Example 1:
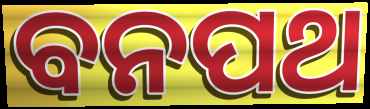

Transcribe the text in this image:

ବନପଥ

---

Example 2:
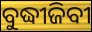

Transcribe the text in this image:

ବୁଦ୍ଧୀଜିବୀ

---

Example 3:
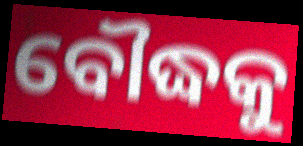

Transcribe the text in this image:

ବୌଦ୍ଧକୁ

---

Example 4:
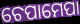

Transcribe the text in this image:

ଚେପାମେପା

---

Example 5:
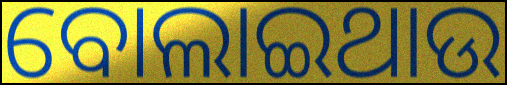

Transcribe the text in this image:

ବୋଲାଇଥାଉ